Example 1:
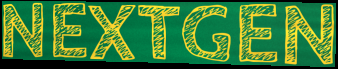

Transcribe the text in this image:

NEXTGEN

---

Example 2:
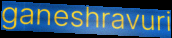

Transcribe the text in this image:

ganeshravuri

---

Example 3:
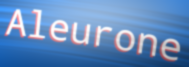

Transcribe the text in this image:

Aleurone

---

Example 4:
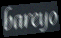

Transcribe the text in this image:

bareyo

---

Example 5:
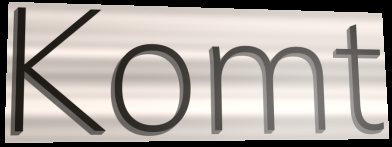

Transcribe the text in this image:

Komt